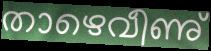
താഴെവീണു്